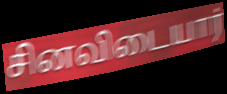
சினவிடையார்